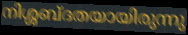
നിശ്ശബ്ദതയായിരുന്നു